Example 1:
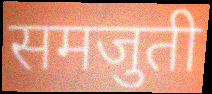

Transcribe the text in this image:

समजुती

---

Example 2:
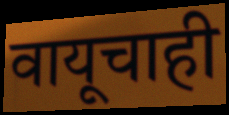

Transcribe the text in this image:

वायूचाही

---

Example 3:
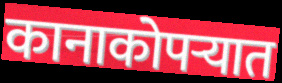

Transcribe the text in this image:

कानाकोपऱ्यात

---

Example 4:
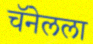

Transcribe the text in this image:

चॅनेलला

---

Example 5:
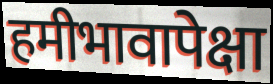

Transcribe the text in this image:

हमीभावापेक्षा